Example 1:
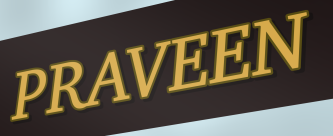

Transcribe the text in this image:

PRAVEEN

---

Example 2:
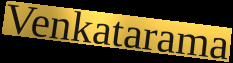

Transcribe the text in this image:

Venkatarama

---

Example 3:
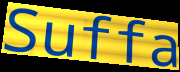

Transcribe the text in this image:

Suffa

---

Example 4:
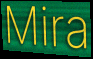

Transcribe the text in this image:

Mira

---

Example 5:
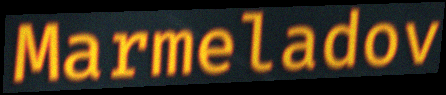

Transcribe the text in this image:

Marmeladov